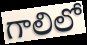
గాలిలో